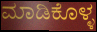
ಮಾಡಿಕೊಳ್ಳ